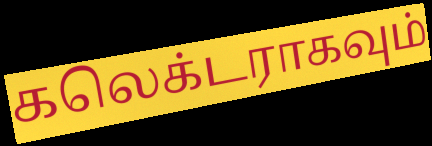
கலெக்டராகவும்